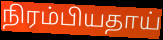
நிரம்பியதாய்